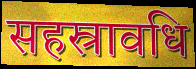
सहस्रावधि